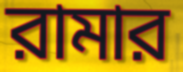
রামার